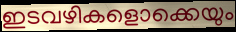
ഇടവഴികളൊക്കെയും